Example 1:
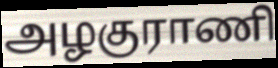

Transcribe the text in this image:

அழகுராணி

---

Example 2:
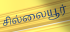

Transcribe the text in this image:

சில்லையூர்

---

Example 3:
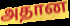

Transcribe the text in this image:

அதான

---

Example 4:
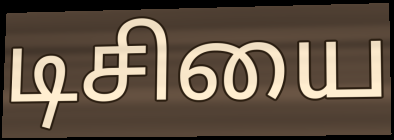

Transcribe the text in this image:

டிசியை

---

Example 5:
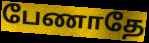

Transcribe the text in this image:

பேணாதே